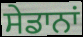
ਸੇਡਾਨਾਂ